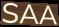
SAA